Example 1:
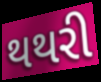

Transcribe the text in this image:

થથરી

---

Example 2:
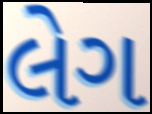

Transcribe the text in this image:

લેગ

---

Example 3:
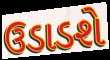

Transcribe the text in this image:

ઉડાડશે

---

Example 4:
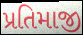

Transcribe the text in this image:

પ્રતિમાજી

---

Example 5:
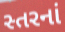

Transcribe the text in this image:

સ્તરનાં